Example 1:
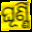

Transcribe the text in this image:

ଘୂର୍ଣ୍ଣି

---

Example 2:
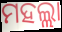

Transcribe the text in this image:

ମହଲ୍ଲା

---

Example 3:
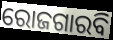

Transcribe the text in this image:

ରୋଜଗାରବି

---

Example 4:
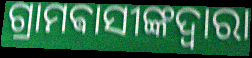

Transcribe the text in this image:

ଗ୍ରାମଵାସୀଙ୍କଦ୍ୱାରା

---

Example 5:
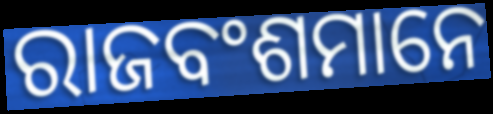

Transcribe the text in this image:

ରାଜବଂଶମାନେ